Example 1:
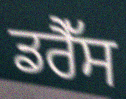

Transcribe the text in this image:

ਡਰੈੱਸ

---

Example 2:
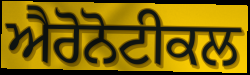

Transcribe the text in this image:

ਐਰੋਨੋਟੀਕਲ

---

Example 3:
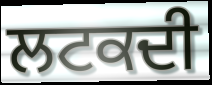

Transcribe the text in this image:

ਲਟਕਦੀ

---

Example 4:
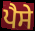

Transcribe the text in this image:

ਪੈਸੇ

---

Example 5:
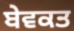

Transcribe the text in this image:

ਬੇਵਕਤ